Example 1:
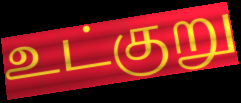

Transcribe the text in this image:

உட்குறு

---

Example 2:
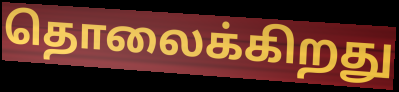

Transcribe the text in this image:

தொலைக்கிறது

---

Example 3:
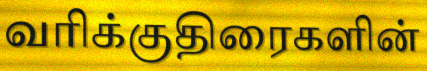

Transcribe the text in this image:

வரிக்குதிரைகளின்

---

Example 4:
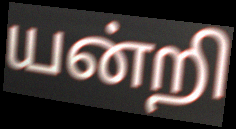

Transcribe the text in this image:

யன்றி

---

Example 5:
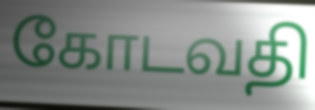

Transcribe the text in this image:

கோடவதி